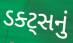
ડક્ટ્સનું